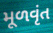
મૂળવૃંત